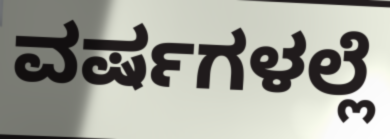
ವರ್ಷಗಳಲ್ಲೆ